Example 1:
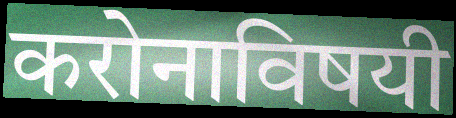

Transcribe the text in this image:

करोनाविषयी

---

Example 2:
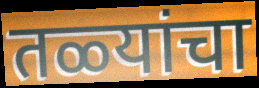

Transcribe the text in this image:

तळ्यांचा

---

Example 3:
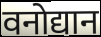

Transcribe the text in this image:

वनोद्यान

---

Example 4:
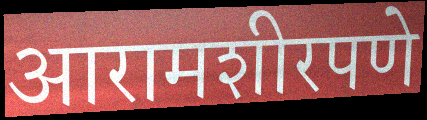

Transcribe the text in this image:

आरामशीरपणे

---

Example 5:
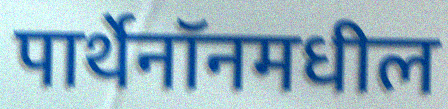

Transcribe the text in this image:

पार्थेनॉनमधील